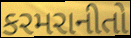
કરમરાનીતો